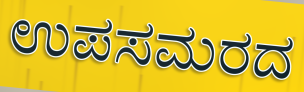
ಉಪಸಮರದ